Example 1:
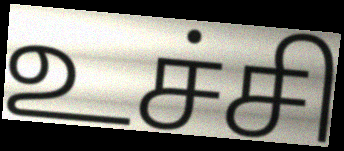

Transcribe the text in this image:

உச்சி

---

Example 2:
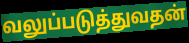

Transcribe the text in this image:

வலுப்படுத்துவதன்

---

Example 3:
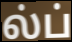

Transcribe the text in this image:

ல்ப்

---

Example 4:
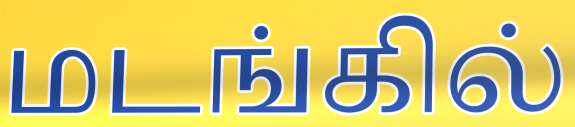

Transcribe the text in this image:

மடங்கில்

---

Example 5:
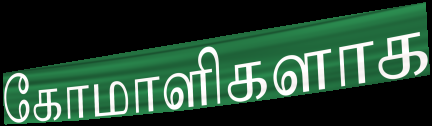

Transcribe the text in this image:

கோமாளிகளாக